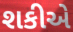
શકીએ